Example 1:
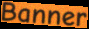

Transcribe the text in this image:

Banner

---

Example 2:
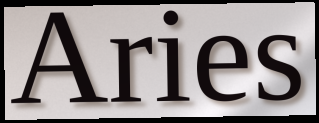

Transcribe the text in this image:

Aries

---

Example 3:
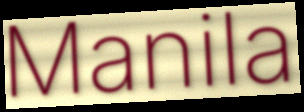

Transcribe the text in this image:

Manila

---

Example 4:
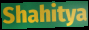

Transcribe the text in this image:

Shahitya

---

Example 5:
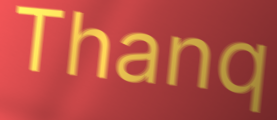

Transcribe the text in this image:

Thanq